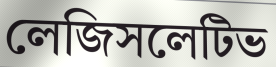
লেজিসলেটিভ